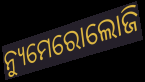
ନ୍ୟୁମେରୋଲୋଜି